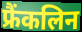
फ्रैंकलिन